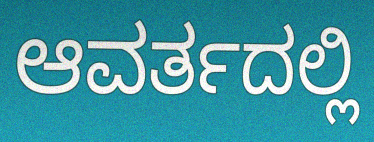
ಆವರ್ತದಲ್ಲಿ